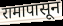
रामापासून